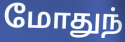
மோதுந்